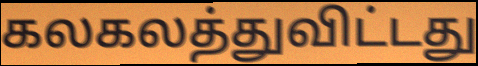
கலகலத்துவிட்டது